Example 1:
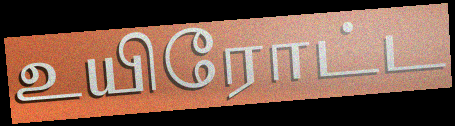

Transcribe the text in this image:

உயிரோட்ட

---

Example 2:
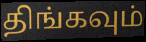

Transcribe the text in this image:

திங்கவும்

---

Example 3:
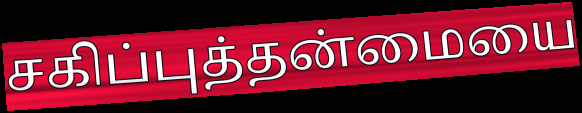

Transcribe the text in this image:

சகிப்புத்தன்மையை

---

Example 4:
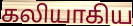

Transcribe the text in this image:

கலியாகிய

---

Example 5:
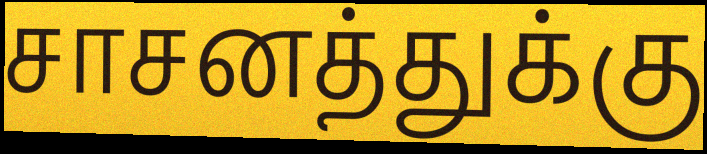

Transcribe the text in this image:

சாசனத்துக்கு